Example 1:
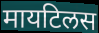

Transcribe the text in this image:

मायटिलस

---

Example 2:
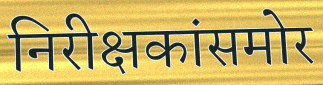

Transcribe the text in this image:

निरीक्षकांसमोर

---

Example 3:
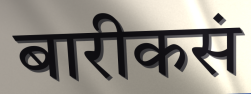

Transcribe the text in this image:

बारीकसं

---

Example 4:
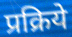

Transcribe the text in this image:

प्रक्रिये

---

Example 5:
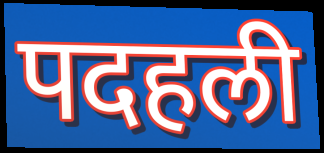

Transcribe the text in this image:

पदहली